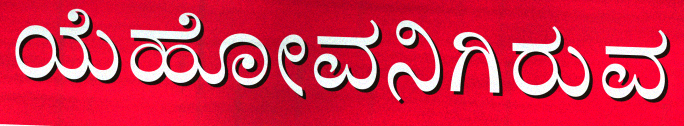
ಯೆಹೋವನಿಗಿರುವ